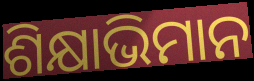
ଶିକ୍ଷାଭିମାନ